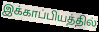
இக்காப்பியத்தில்